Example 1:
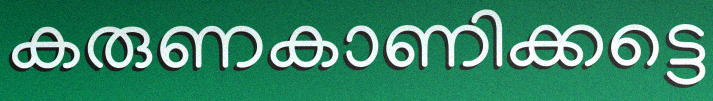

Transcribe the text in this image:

കരുണകാണിക്കട്ടെ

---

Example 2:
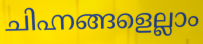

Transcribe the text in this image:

ചിഹ്നങ്ങളെല്ലാം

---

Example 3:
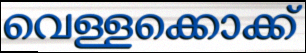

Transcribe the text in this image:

വെള്ളക്കൊക്ക്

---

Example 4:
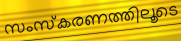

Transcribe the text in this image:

സംസ്കരണത്തിലൂടെ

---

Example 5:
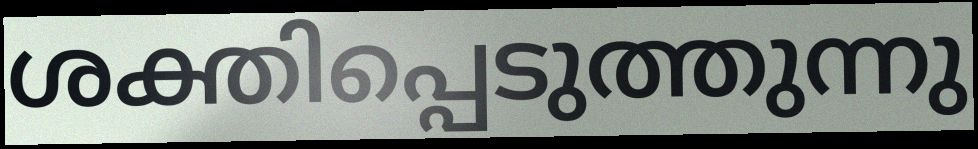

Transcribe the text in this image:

ശക്തിപ്പെടുത്തുന്നു